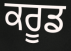
ਕਰੂਡ